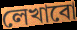
লেখাবো